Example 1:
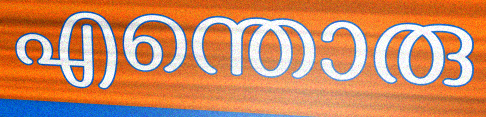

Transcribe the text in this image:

എന്തൊരു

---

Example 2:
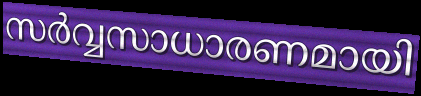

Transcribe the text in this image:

സർവ്വസാധാരണമായി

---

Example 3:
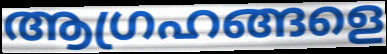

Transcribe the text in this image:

ആഗ്രഹങ്ങളെ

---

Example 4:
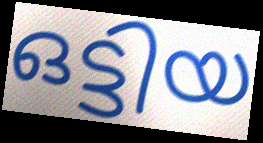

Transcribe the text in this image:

ഒട്ടിയ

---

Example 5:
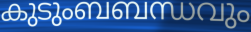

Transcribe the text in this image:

കുടുംബബന്ധവും